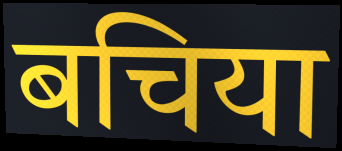
बचिया